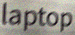
laptop